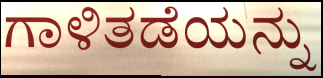
ಗಾಳಿತಡೆಯನ್ನು